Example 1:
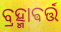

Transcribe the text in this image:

ବ୍ରହ୍ମାଵର୍ତ୍ତ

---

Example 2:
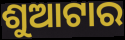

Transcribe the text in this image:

ଶୁଆଟାର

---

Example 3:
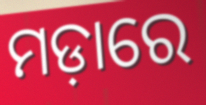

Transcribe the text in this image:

ମଡ଼ାରେ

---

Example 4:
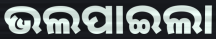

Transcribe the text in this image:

ଭଲପାଇଲା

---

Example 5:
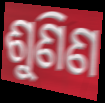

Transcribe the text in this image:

ଶୁଣିଣ